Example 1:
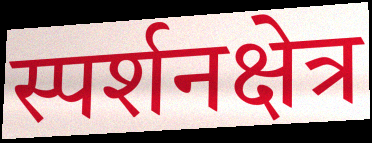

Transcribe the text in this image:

स्पर्शनक्षेत्र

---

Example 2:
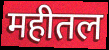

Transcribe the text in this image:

महीतल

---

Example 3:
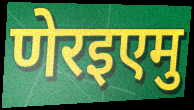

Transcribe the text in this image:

णेरइएमु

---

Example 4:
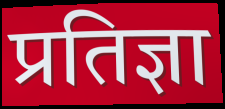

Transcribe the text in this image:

प्रतिज्ञा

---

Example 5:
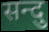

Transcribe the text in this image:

सन्दु